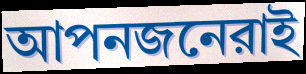
আপনজনেরাই